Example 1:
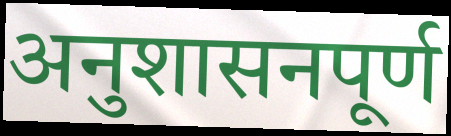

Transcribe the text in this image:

अनुशासनपूर्ण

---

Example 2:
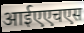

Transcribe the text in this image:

आईएएचएस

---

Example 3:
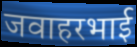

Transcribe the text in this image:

जवाहरभाई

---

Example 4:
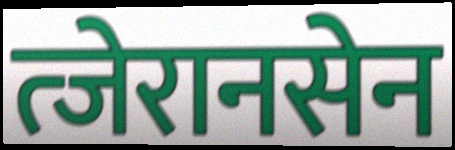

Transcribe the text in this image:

त्जेरानसेन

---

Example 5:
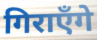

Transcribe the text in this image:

गिराएँगे